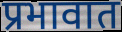
प्रभावात